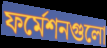
ফর্মেশনগুলো